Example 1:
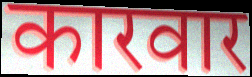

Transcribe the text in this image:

कारवार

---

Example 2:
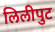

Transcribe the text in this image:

लिलीपुट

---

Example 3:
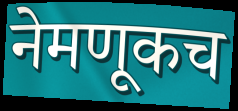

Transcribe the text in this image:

नेमणूकच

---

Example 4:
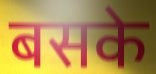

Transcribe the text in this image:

बसके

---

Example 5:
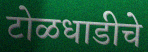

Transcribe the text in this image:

टोळधाडीचे